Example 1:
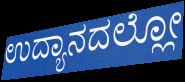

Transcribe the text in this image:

ಉದ್ಯಾನದಲ್ಲೋ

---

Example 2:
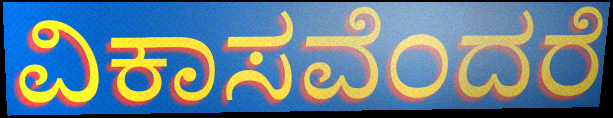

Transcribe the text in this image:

ವಿಕಾಸವೆಂದರೆ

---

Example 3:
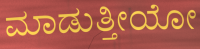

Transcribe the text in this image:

ಮಾಡುತ್ತೀಯೋ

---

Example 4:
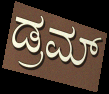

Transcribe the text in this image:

ಡ್ರಮ್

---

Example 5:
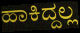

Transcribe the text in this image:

ಹಾಕಿದ್ದಲ್ಲ